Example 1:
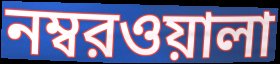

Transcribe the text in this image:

নম্বরওয়ালা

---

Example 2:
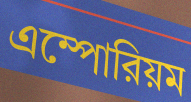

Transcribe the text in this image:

এম্পোরিয়ম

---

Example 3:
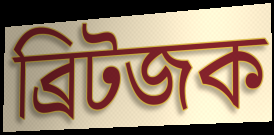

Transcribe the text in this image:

ব্রিটজক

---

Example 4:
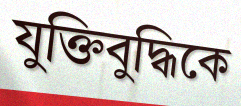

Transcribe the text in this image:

যুক্তিবুদ্ধিকে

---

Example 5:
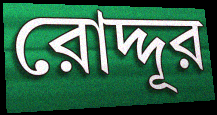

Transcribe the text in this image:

রোদ্দূর